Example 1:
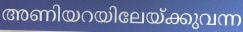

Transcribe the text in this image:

അണിയറയിലേയ്ക്കുവന്ന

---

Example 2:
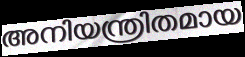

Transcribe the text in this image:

അനിയന്ത്രിതമായ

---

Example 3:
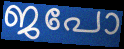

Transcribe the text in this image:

ജപോ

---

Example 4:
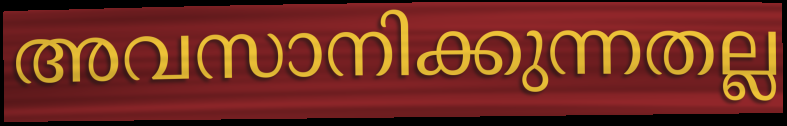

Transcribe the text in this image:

അവസാനിക്കുന്നതല്ല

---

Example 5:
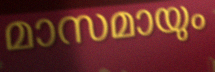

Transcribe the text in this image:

മാസമായും